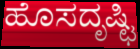
ಹೊಸದೃಷ್ಟಿ